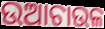
ଉଆଚାଉଳ